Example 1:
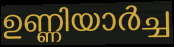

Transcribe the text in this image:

ഉണ്ണിയാർച്ച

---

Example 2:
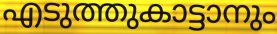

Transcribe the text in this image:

എടുത്തുകാട്ടാനും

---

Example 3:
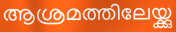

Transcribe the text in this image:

ആശ്രമത്തിലേയ്ക്കു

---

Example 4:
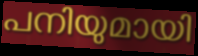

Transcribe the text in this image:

പനിയുമായി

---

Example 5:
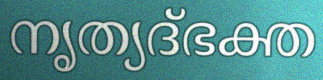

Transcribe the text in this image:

നൃത്യദ്ഭക്ത